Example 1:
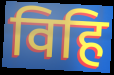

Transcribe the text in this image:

विहि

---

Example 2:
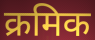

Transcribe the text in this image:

क्रमिक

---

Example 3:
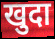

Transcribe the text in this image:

खुदा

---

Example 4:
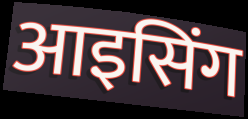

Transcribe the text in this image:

आइसिंग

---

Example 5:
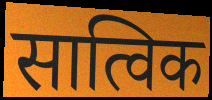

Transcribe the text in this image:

सात्विक